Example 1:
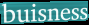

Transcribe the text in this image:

buisness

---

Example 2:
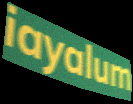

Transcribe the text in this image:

iayalum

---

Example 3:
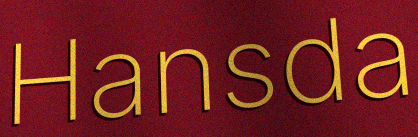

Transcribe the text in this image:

Hansda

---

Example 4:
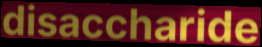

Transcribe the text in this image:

disaccharide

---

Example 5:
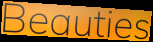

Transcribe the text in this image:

Beauties